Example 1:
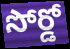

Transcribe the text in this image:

సోర్డో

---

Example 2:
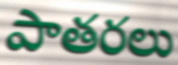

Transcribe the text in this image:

పాతరలు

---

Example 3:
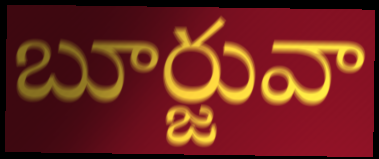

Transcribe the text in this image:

బూర్జువా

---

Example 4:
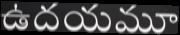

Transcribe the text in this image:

ఉదయమూ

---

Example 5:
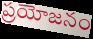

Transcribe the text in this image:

ప్రయోజనం